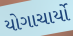
યોગાચાર્યો